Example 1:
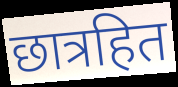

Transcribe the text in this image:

छात्रहित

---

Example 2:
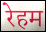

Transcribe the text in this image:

रेहम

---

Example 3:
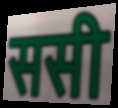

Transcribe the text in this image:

ससी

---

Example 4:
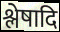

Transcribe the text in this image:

श्लेषादि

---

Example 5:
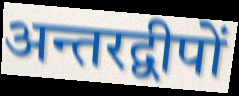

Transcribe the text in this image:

अन्तरद्वीपों